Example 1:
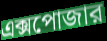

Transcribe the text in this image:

এক্সপোজার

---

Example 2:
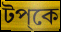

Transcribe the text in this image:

টপ্কে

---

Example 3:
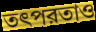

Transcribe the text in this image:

তৎপরতাও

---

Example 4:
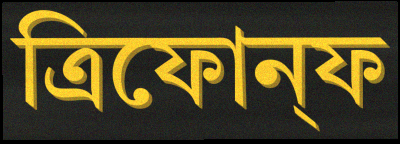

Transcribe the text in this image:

ত্রিফোন্ফ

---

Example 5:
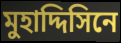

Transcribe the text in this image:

মুহাদ্দিসিনে